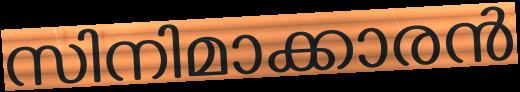
സിനിമാക്കാരൻ